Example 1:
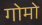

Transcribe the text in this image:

गोमो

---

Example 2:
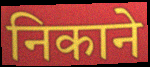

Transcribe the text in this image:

निकाने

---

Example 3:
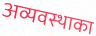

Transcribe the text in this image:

अव्यवस्थाका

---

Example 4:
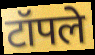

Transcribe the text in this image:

टॉपले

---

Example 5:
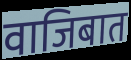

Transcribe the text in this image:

वाजिबात